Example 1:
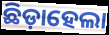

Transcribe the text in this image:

ଛିଡ଼ାହେଲା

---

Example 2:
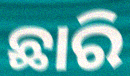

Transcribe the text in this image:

ଛାରି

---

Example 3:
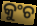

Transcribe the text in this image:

କୁଂଚ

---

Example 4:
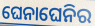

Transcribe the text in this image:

ଘେନାଘେନିର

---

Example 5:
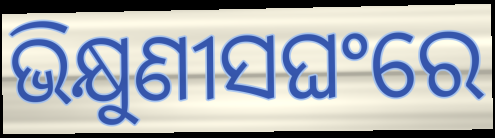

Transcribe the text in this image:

ଭିକ୍ଷୁଣୀସଘଂରେ